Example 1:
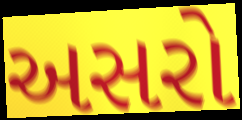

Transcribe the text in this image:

અસરો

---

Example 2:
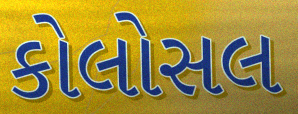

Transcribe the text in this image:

કોલોસલ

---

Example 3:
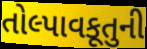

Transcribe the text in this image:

તોલ્પાવકૂતુની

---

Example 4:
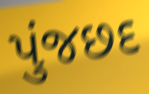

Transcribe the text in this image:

પુંજછદ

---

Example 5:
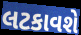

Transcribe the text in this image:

લટકાવશે